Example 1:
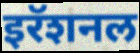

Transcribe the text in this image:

इरॅशनल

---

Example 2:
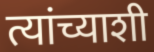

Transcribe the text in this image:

त्यांच्याशी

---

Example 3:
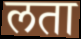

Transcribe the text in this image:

लता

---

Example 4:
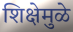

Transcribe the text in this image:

शिक्षेमुळे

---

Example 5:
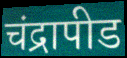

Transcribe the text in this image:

चंद्रापीड